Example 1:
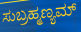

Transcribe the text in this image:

ಸುಬ್ರಹ್ಮಣ್ಯಮ್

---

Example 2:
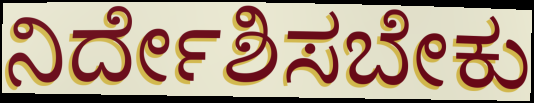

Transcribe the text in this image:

ನಿರ್ದೇಶಿಸಬೇಕು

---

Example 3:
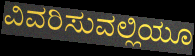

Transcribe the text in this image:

ವಿವರಿಸುವಲ್ಲಿಯೂ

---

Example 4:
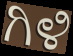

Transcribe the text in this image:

ಗಿಳಿ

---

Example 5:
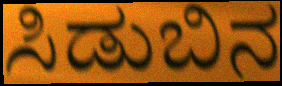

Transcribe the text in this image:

ಸಿಡುಬಿನ